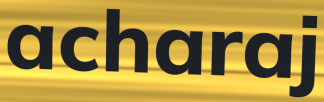
acharaj